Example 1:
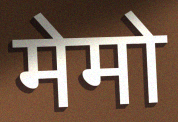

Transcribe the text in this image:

मेमो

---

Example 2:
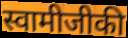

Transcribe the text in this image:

स्वामीजीकी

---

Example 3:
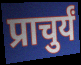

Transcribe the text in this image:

प्राचुर्यं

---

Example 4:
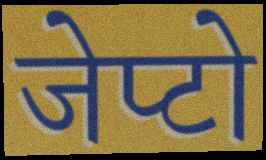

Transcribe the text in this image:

जेप्टो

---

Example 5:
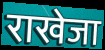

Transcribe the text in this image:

राखेजा